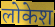
लोकेश